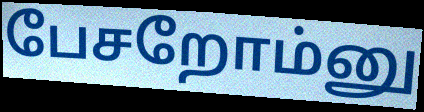
பேசறோம்னு